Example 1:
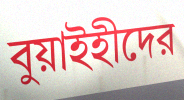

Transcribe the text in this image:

বুয়াইহীদের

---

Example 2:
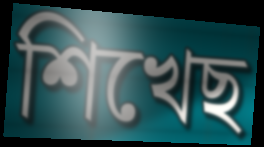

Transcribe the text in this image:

শিখেছ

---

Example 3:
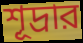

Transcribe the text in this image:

শূদ্রার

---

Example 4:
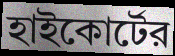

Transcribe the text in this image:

হাইকোর্টের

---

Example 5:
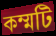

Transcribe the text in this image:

কম্মটি